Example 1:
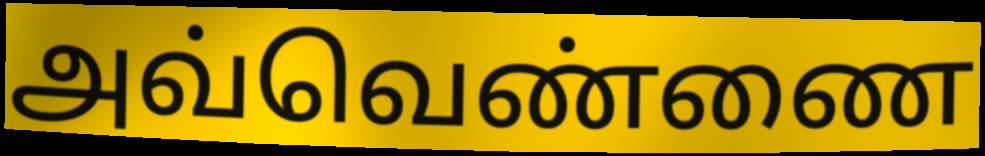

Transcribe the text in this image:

அவ்வெண்ணை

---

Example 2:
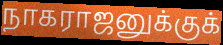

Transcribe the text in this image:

நாகராஜனுக்குக்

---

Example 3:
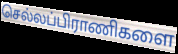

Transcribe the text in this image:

செல்லப்பிராணிகளை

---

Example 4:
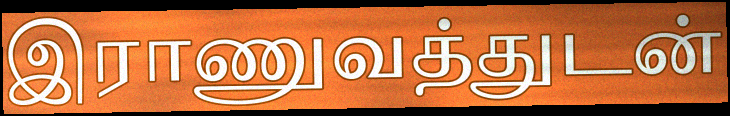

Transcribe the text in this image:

இராணுவத்துடன்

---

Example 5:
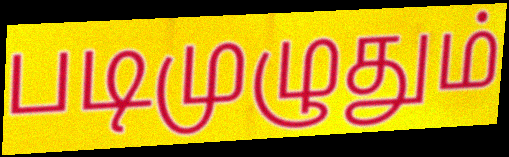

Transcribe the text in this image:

படிமுழுதும்